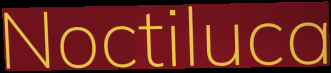
Noctiluca